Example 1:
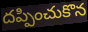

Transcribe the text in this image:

దప్పించుకొన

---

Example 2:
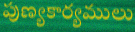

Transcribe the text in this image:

పుణ్యకార్యములు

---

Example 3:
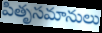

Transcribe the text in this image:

పితృసమానులు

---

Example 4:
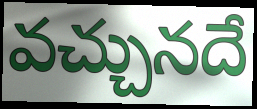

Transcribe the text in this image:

వచ్చునదే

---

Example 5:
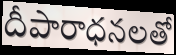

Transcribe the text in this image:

దీపారాధనలతో